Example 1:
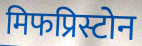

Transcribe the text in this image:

मिफप्रिस्टोन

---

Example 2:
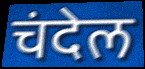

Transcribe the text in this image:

चंदेल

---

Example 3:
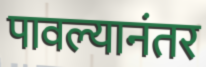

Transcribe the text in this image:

पावल्यानंतर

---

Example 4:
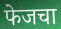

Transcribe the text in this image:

फेजचा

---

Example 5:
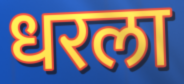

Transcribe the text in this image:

धरला